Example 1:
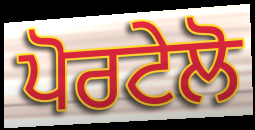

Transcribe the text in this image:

ਪੋਰਟੇਲੋ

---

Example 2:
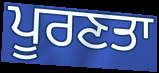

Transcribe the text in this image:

ਪੂਰਣਤਾ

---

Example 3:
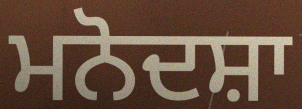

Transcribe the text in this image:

ਮਨੋਦਸ਼ਾ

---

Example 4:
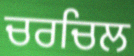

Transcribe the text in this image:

ਚਰਚਿਲ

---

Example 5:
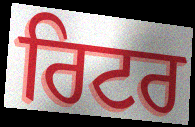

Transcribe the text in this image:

ਰਿਟਰ